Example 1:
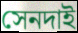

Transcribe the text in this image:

সেনদাই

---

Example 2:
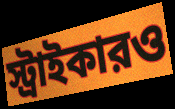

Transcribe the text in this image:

স্ট্রাইকারও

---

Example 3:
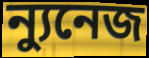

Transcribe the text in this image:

ন্যুনেজ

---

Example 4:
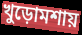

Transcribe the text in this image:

খুড়োমশায়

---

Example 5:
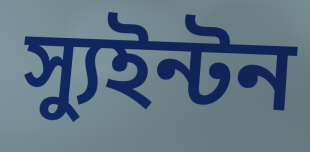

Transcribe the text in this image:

স্যুইন্টন